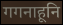
गगनाहूनि